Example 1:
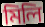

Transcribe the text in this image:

মিলি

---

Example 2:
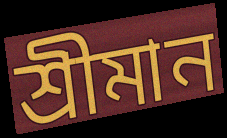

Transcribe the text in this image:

শ্ৰীমান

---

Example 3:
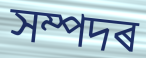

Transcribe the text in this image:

সম্পদৰ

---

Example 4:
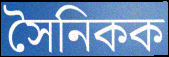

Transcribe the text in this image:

সৈনিকক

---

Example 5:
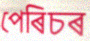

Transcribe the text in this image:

পেৰিচৰ